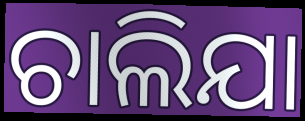
ଚାଲିଯା